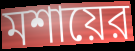
মশায়ের